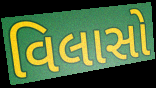
વિલાસો